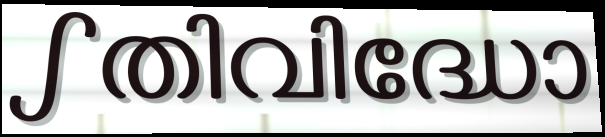
ഽതിവിദ്ധോ